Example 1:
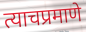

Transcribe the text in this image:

त्याचप्रमाणे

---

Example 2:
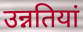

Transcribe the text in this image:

उन्नतियां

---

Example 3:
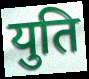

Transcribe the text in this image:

युति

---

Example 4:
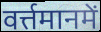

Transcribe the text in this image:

वर्त्तमानमें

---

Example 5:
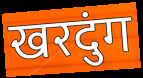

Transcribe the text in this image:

खरदुंग